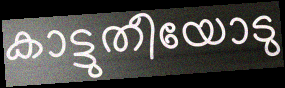
കാട്ടുതീയോടു